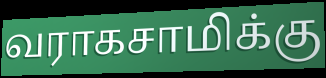
வராகசாமிக்கு